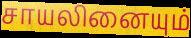
சாயலினையும்